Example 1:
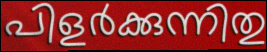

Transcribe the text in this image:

പിളർക്കുന്നിതു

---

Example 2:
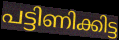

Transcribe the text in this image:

പട്ടിണിക്കിട്ട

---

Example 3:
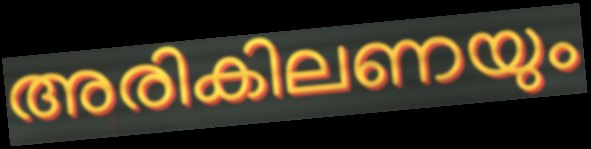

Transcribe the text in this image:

അരികിലണയും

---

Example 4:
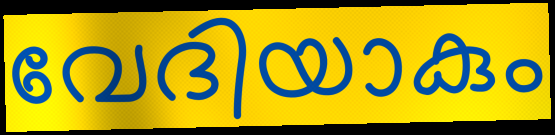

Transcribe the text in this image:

വേദിയാകും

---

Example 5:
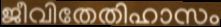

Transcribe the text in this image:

ജീവിതേതിഹാസം